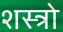
शस्त्रो